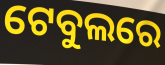
ଟେବୁଲରେ